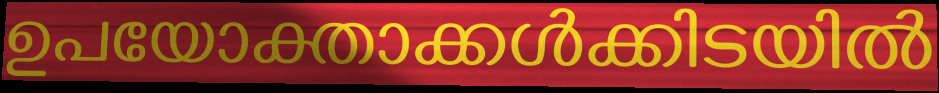
ഉപയോക്താക്കൾക്കിടയിൽ